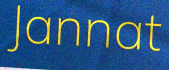
Jannat